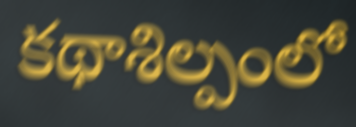
కథాశిల్పంలో